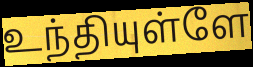
உந்தியுள்ளே